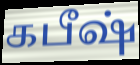
கபீஷ்